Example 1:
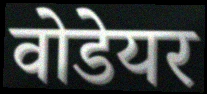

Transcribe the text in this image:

वोडेयर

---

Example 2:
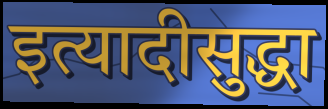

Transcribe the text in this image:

इत्यादीसुद्धा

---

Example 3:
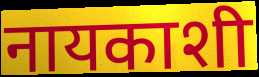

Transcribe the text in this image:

नायकाशी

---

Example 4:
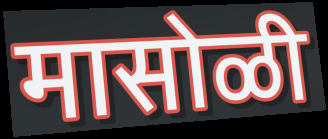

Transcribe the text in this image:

मासोळी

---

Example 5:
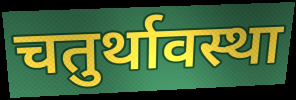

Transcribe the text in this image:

चतुर्थावस्था